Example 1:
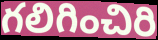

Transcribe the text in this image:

గలిగించిరి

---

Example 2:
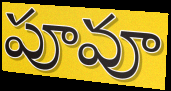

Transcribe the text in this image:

పూవూ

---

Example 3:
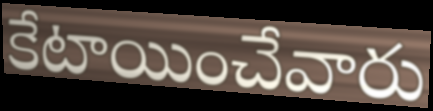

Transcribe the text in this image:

కేటాయించేవారు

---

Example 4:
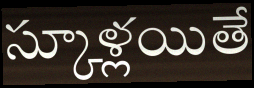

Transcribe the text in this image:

స్కూళ్లయితే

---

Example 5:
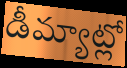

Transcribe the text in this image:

డీమ్యాట్లో